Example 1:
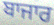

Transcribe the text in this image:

ਬਾਜਾਰ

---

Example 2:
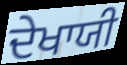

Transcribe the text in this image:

ਦੇਖਾਯੀ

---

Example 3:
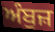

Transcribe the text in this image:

ਅੰਬੁਜ਼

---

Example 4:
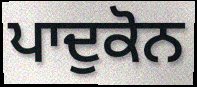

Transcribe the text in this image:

ਪਾਦੁਕੋਨ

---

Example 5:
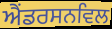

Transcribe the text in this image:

ਐਂਡਰਸਨਵਿਲ